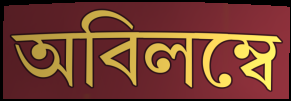
অবিলম্বে